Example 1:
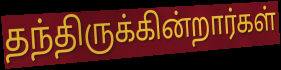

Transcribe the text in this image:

தந்திருக்கின்றார்கள்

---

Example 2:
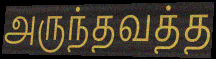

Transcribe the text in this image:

அருந்தவத்த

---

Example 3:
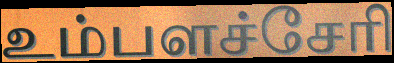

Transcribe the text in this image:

உம்பளச்சேரி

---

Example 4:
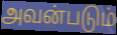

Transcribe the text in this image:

அவன்படும்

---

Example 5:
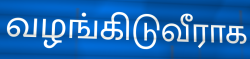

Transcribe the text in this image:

வழங்கிடுவீராக